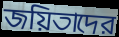
জয়িতাদের